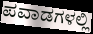
ಪವಾಡಗಳಲ್ಲಿ